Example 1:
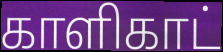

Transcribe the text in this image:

காளிகாட்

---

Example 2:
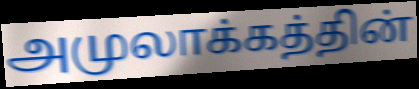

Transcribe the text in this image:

அமுலாக்கத்தின்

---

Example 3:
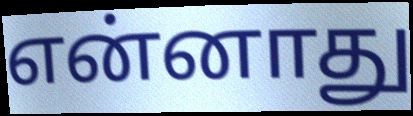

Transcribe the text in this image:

என்னாது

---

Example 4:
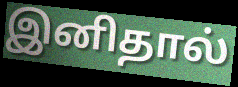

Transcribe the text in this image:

இனிதால்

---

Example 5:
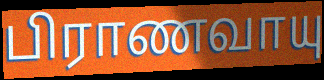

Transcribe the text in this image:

பிராணவாயு